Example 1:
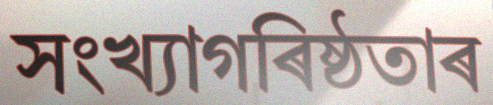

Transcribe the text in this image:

সংখ্যাগৰিষ্ঠতাৰ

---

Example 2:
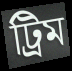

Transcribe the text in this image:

ট্ৰিম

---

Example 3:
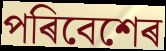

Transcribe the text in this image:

পৰিবেশেৰ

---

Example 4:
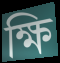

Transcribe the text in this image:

ক্ষি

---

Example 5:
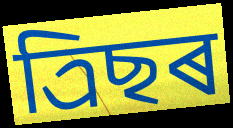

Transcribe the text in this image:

ত্ৰিছৰ